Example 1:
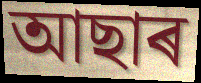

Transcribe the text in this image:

আছাৰ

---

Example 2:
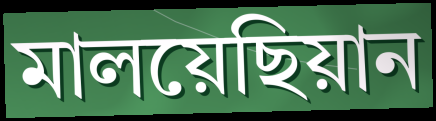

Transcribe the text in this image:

মালয়েছিয়ান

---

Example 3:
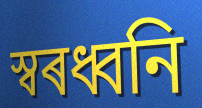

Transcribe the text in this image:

স্বৰধ্বনি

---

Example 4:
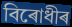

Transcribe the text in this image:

বিৰোধীৰ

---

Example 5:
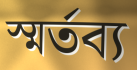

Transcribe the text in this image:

স্মৰ্তব্য